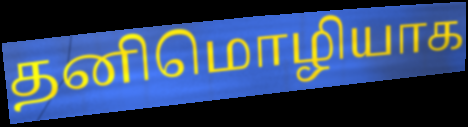
தனிமொழியாக